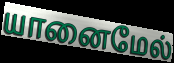
யானைமேல்